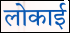
लोकाई